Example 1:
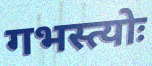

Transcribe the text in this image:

गभस्त्योः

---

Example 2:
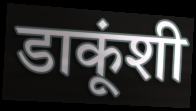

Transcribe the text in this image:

डाकूंशी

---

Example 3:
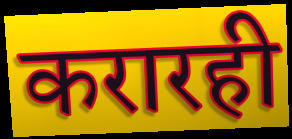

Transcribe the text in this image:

करारही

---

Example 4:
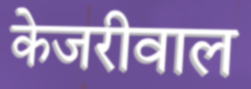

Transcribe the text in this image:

केजरीवाल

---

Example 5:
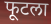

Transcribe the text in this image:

फूटला